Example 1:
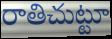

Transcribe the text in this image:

రాతిచుట్టూ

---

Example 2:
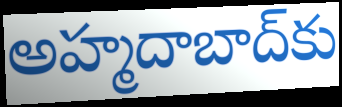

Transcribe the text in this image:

అహ్మదాబాద్‌కు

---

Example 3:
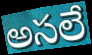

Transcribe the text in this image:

అసలే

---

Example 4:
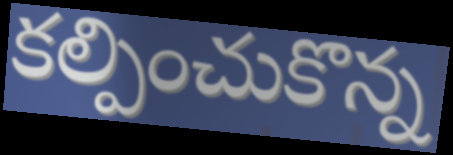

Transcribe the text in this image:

కల్పించుకొన్న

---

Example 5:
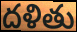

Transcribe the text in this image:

దళితు